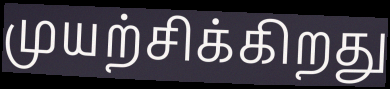
முயற்சிக்கிறது